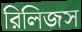
রিলিজস